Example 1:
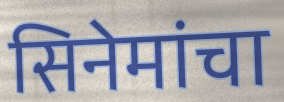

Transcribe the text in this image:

सिनेमांचा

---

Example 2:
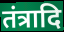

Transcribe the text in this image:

तंत्रादि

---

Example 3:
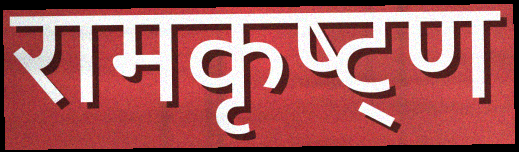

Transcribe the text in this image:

रामकृष्ट्ण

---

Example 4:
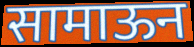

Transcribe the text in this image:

सामाऊन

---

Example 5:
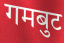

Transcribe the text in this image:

गमबुट